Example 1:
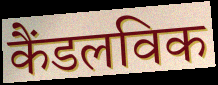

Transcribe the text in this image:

कैंडलविक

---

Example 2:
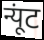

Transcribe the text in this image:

न्यूंट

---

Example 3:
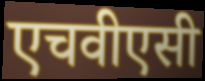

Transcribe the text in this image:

एचवीएसी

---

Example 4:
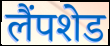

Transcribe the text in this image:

लैंपशेड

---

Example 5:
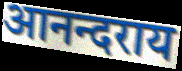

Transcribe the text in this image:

आनन्दराय